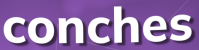
conches